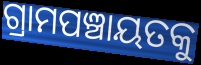
ଗ୍ରାମପଞ୍ଚାୟତକୁ